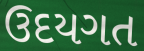
ઉદયગત